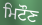
ਮਿਟੌਣ